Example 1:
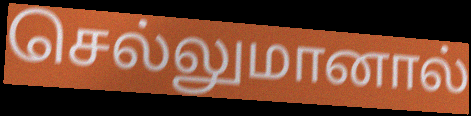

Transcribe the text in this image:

செல்லுமானால்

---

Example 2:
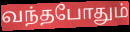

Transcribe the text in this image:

வந்தபோதும்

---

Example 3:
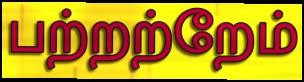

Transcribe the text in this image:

பற்றற்றேம்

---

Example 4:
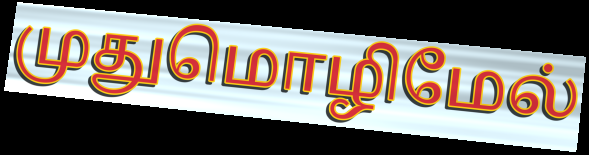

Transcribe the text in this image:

முதுமொழிமேல்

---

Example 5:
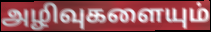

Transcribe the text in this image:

அழிவுகளையும்